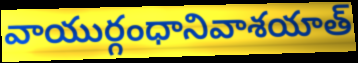
వాయుర్గంధానివాశయాత్